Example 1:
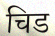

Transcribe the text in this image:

चिड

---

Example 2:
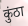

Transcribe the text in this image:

कुंठा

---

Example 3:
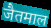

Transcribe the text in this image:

जैतमाल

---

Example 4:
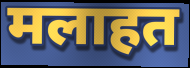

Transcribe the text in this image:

मलाहत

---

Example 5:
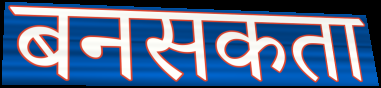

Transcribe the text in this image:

बनसकता